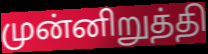
முன்னிறுத்தி